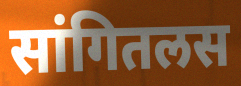
सांगितलस